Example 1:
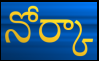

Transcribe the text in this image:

నోర్కా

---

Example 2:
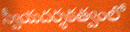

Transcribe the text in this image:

స్వీయదర్శకత్వంలో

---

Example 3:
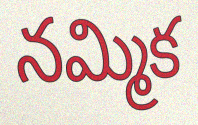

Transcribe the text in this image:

నమ్మిక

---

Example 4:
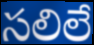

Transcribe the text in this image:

సలిలే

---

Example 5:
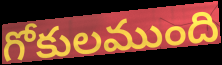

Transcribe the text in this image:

గోకులముంది